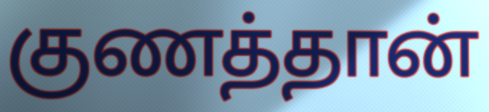
குணத்தான்